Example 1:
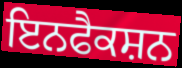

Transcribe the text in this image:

ਇਨਫੈਕਸ਼ਨ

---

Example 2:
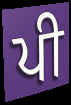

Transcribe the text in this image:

ਪੀ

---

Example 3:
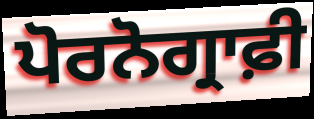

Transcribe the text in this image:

ਪੋਰਨੋਗ੍ਰਾਫ਼ੀ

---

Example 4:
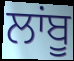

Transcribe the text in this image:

ਲਾਂਬੂ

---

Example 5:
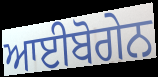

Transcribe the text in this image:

ਆਈਬੋਗੇਨ